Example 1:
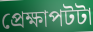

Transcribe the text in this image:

প্রেক্ষাপটটা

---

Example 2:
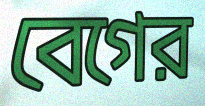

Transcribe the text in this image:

বেগের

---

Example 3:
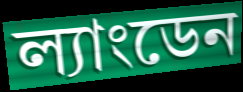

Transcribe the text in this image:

ল্যাংডেন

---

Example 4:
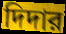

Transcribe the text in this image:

দিদার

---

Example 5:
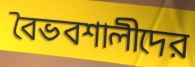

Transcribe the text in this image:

বৈভবশালীদের